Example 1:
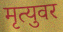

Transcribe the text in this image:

मृत्युवर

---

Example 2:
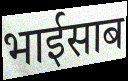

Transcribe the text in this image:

भाईसाब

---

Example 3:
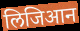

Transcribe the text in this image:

लिजिआन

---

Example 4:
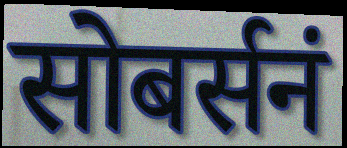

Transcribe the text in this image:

सोबर्सनं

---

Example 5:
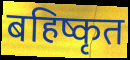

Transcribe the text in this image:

बहिष्कृत